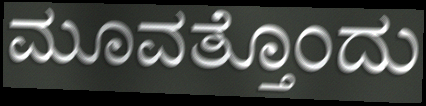
ಮೂವತ್ತೊಂದು